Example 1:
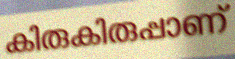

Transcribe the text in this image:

കിരുകിരുപ്പാണ്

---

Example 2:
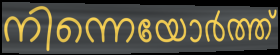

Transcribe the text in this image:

നിന്നെയോർത്ത്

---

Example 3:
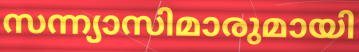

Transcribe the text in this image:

സന്ന്യാസിമാരുമായി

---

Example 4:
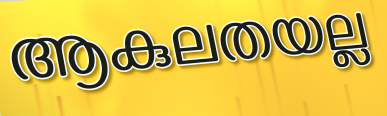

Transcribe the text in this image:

ആകുലതയല്ല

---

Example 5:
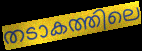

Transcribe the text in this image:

തടാകത്തിലെ